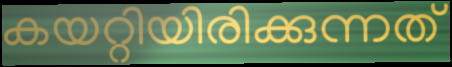
കയറ്റിയിരിക്കുന്നത്